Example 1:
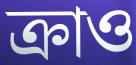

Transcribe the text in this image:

ক্রাও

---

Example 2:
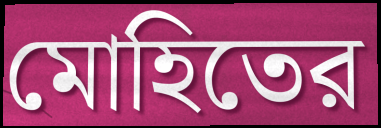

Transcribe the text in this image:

মোহিতের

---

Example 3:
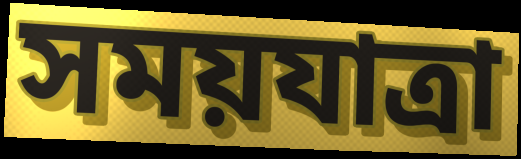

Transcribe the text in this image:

সময়যাত্রা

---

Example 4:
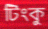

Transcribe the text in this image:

টিংকু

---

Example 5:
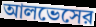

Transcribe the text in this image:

আলভেসের